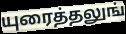
யுரைத்தலுங்